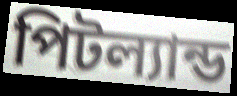
পিটল্যান্ড